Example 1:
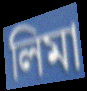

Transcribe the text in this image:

লিমা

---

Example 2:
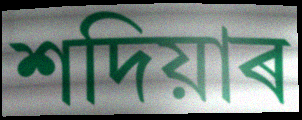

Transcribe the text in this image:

শদিয়াৰ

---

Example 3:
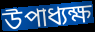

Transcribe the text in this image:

উপাধ্যক্ষ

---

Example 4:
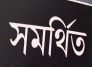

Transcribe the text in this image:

সমৰ্থিত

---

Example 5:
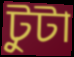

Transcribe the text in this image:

টুটা